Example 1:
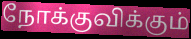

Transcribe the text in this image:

நோக்குவிக்கும்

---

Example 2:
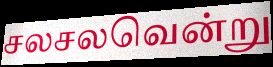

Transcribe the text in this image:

சலசலவென்று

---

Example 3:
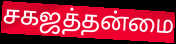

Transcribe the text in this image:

சகஜத்தன்மை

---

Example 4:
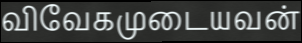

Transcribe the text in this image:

விவேகமுடையவன்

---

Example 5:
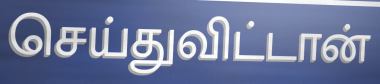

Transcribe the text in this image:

செய்துவிட்டான்